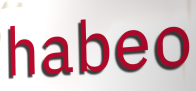
habeo